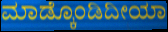
ಮಾಡ್ಕೊಂಡಿದೀಯಾ